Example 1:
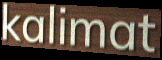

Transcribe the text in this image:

kalimat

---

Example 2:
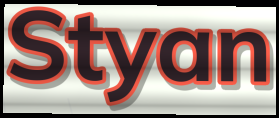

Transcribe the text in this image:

Styan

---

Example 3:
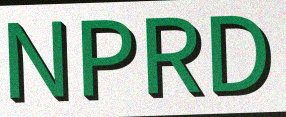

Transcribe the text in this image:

NPRD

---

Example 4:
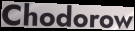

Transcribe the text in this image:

Chodorow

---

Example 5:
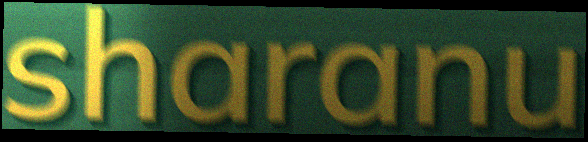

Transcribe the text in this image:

sharanu